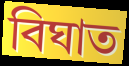
বিঘাত